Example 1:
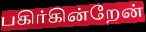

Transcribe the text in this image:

பகிர்கின்றேன்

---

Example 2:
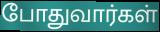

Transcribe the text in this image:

போதுவார்கள்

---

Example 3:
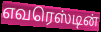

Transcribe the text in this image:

எவரெஸ்டின்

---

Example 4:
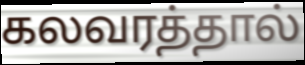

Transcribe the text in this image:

கலவரத்தால்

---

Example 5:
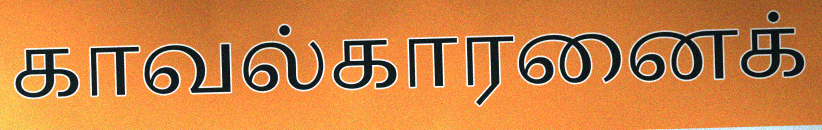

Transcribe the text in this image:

காவல்காரனைக்